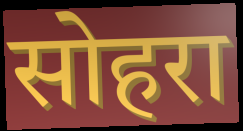
सोहरा